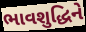
ભાવશુદ્ધિને